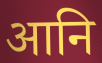
आनि